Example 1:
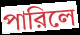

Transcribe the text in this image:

পারিলে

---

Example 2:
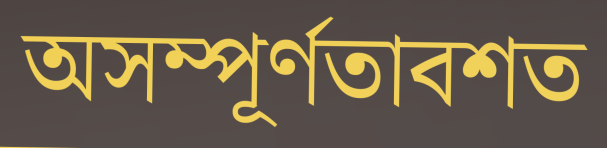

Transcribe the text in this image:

অসম্পূর্ণতাবশত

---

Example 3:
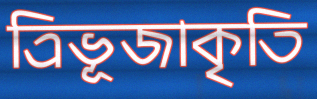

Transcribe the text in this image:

ত্রিভূজাকৃতি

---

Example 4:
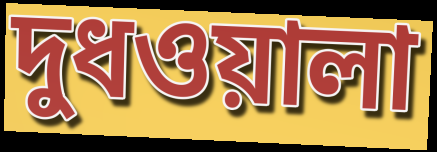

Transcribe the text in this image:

দুধওয়ালা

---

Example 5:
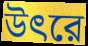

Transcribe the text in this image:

উৎরে